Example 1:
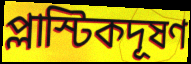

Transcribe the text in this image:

প্লাস্টিকদূষণ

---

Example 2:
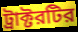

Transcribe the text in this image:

ট্রাক্টরটির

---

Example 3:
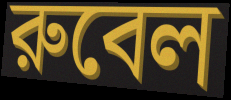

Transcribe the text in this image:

রুবেল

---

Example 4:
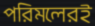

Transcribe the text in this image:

পরিমলেরই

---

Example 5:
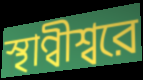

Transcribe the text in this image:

স্থাণ্বীশ্বরে